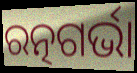
ରତ୍ନଗର୍ଭା